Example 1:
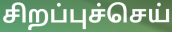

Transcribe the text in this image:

சிறப்புச்செய்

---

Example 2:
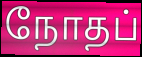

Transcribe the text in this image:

நோதப்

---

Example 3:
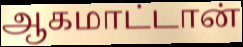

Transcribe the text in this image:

ஆகமாட்டான்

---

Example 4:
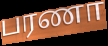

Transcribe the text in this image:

பரணா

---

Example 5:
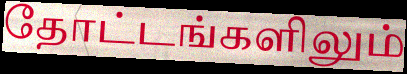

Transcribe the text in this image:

தோட்டங்களிலும்